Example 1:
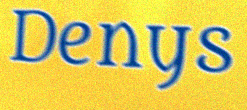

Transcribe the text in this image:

Denys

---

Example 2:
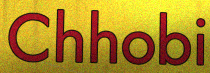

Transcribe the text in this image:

Chhobi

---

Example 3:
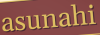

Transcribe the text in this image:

asunahi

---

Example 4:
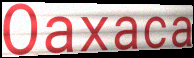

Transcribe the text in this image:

Oaxaca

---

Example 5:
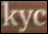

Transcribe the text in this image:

kyc